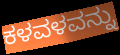
ಕಳವಳವನ್ನು